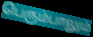
பெரும்பாலும்